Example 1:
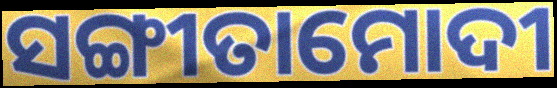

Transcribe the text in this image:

ସଙ୍ଗୀତାମୋଦୀ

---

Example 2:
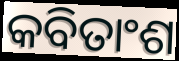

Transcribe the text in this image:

କବିତାଂଶ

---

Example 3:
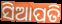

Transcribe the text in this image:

ସିଆପତି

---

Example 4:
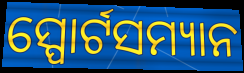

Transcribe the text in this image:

ସ୍ପୋର୍ଟସମ୍ୟାନ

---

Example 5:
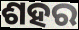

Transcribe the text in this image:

ଶହର